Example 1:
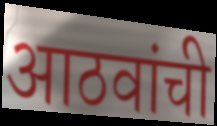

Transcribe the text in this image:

आठवांची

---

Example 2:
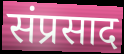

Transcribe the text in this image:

संप्रसाद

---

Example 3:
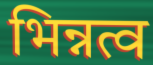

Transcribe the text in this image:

भिन्नत्व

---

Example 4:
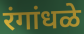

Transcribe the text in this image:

रंगांधळे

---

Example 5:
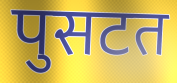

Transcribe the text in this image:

पुसटत